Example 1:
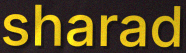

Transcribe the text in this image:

sharad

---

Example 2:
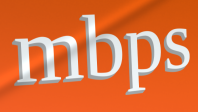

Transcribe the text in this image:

mbps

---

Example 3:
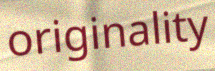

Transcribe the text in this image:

originality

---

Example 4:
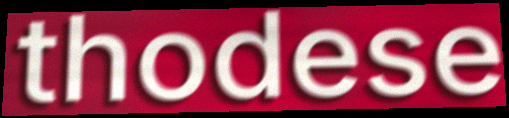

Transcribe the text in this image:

thodese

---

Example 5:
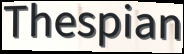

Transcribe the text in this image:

Thespian